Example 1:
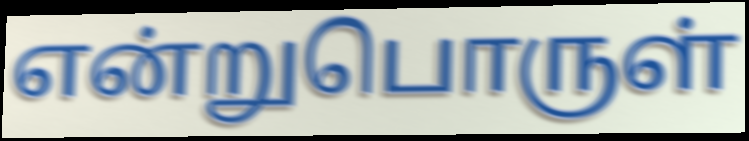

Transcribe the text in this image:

என்றுபொருள்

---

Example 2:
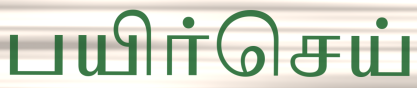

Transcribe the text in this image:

பயிர்செய்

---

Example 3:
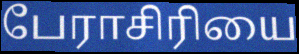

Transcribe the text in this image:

பேராசிரியை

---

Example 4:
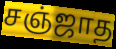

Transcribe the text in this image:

சஞ்ஜாத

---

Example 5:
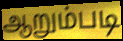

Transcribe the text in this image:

ஆறும்படி